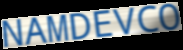
NAMDEVCO